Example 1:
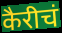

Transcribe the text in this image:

कैरीचं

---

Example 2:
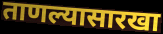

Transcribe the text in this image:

ताणल्यासारखा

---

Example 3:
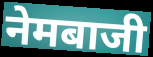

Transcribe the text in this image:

नेमबाजी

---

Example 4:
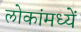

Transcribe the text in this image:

लोकांमध्यें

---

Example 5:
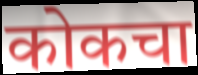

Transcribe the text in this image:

कोकचा